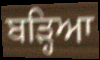
ਬੜ੍ਹਿਆ